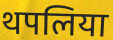
थपलिया